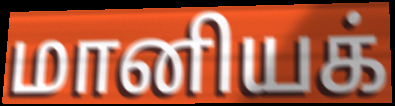
மானியக்